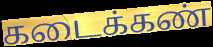
கடைக்கண்